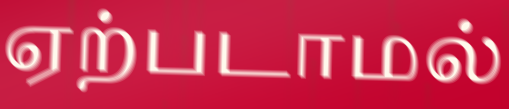
ஏற்படாமல்